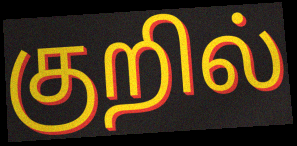
குறில்